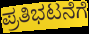
ಪ್ರತಿಭಟನೆಗೆ